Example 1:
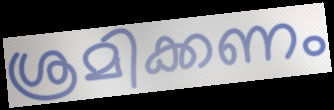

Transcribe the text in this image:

ശ്രമിക്കണം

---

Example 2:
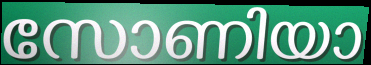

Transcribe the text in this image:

സോണിയാ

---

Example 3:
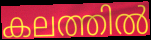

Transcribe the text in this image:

കലത്തിൽ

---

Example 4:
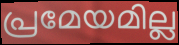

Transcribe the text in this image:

പ്രമേയമില്ല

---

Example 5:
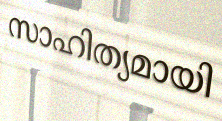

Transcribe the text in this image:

സാഹിത്യമായി